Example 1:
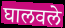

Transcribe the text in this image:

घालवले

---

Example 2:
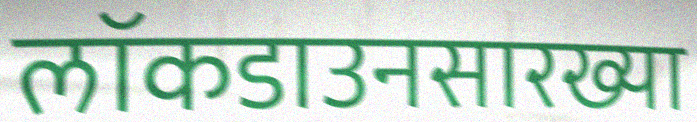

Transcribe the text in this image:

लॉकडाउनसारख्या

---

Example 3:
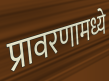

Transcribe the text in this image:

प्रावरणामध्ये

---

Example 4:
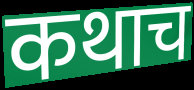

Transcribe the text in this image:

कथाच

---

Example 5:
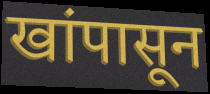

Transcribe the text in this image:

खांपासून